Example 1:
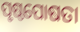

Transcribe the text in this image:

ପୃଷ୍ଠପୋଷତା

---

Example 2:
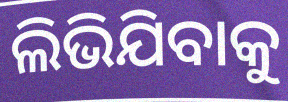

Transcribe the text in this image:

ଲିଭିଯିବାକୁ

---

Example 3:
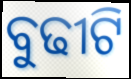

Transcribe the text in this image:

ବୁଢୀଟି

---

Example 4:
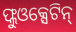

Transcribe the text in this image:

ଫ୍ଲୁଓକ୍ସେଟିନ୍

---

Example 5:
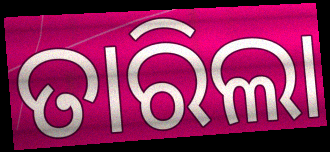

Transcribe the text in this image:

ତାରିଲା